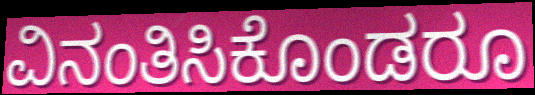
ವಿನಂತಿಸಿಕೊಂಡರೂ